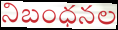
నిబంధనల